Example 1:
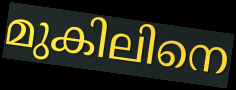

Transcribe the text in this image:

മുകിലിനെ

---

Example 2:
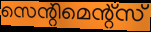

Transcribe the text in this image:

സെന്റിമെന്റ്സ്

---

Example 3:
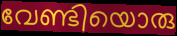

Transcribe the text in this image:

വേണ്ടിയൊരു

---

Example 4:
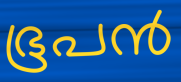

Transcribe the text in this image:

ഭൂപൻ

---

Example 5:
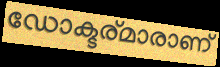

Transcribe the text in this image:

ഡോക്ടര്മാരാണ്